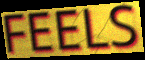
FEELS